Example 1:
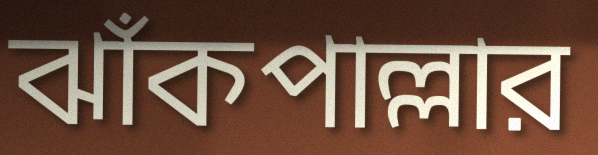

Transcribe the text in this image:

ঝাঁকপাল্লার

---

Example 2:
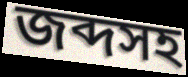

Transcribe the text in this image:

জব্দসহ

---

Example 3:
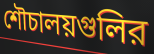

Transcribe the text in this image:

শৌচালয়গুলির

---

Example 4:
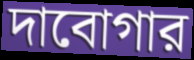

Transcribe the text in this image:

দাবোগার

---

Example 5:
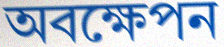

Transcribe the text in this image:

অবক্ষেপন